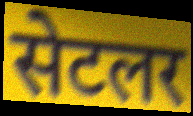
सेटलर